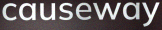
causeway